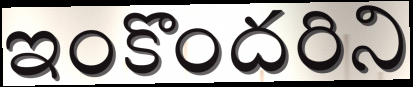
ఇంకొందరిని